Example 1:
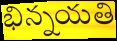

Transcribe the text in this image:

భిన్నయతి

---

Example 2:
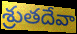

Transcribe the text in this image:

శ్రుతదేవా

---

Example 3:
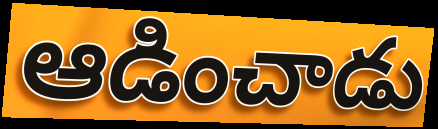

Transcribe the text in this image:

ఆడించాడు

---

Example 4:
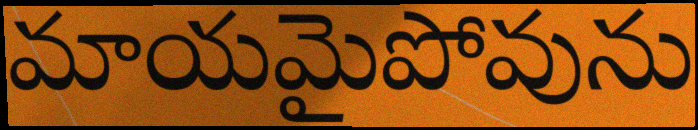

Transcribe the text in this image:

మాయమైపోవును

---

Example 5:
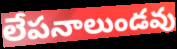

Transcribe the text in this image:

లేపనాలుండవు